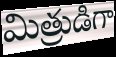
మిత్రుడిగా